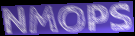
NMOPS